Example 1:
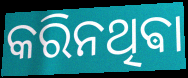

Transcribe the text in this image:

କରିନଥିଵା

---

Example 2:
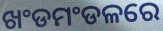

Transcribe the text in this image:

ଖଂଡମଂଡଳରେ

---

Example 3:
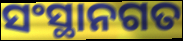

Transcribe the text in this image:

ସଂସ୍ଥାନଗତ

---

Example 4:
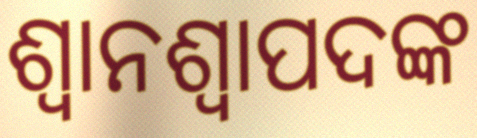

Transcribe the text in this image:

ଶ୍ୱାନଶ୍ୱାପଦଙ୍କ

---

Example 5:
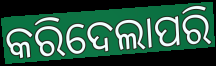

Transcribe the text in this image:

କରିଦେଲାପରି